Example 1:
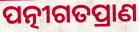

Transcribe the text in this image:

ପତ୍ନୀଗତପ୍ରାଣ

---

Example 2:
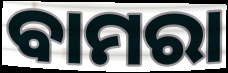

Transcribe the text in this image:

ବାମରା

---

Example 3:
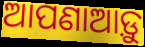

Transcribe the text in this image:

ଆପଣାଆଡ଼ୁ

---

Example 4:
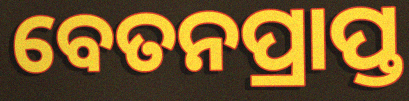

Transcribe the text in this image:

ବେତନପ୍ରାପ୍ତ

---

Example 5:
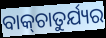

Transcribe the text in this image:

ବାକ୍‍ଚାତୁର୍ଯ୍ୟର